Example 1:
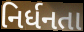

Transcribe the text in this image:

નિર્ધનતા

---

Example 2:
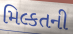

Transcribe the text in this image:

મિલ્કતની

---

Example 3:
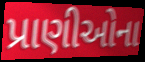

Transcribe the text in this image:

પ્રાણીઓના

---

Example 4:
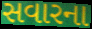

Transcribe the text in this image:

સવારના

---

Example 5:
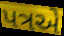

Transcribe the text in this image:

પત્રએ